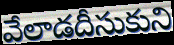
వేలాడదీసుకుని